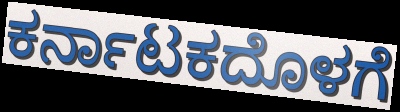
ಕರ್ನಾಟಕದೊಳಗೆ